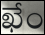
ఖేం